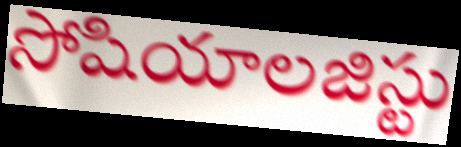
సోషియాలజిస్టు